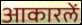
आकारलें